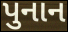
પુનાન